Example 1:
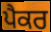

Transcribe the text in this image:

ਪੈਕਰ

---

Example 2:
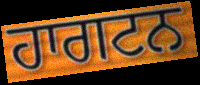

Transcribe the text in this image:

ਹਾਗਟਨ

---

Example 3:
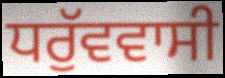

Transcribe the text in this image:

ਧਰੁੱਵਵਾਸੀ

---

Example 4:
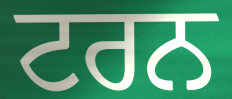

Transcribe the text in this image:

ਟਰਨ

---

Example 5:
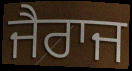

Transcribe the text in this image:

ਜੈਰਾਜ